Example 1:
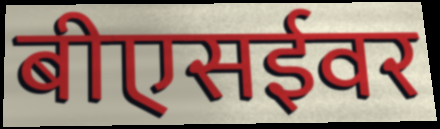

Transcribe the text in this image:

बीएसईवर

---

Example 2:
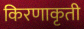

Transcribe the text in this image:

किरणाकृती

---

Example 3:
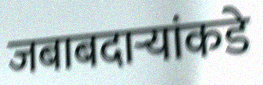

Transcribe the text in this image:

जबाबदाऱ्यांकडे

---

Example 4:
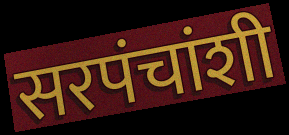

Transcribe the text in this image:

सरपंचांशी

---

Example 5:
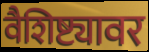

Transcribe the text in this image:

वैशिष्ट्यावर